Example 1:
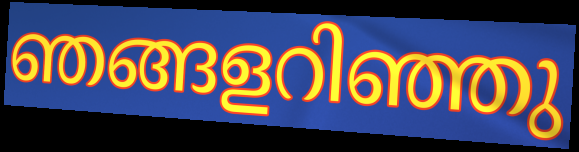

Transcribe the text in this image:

ഞങ്ങളറിഞ്ഞു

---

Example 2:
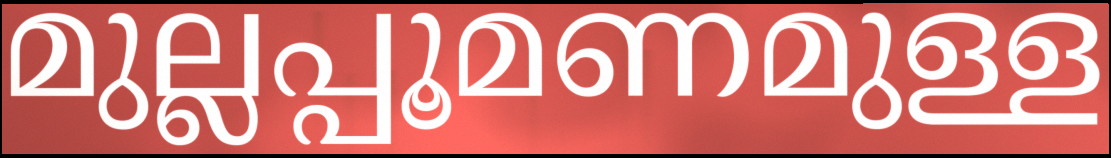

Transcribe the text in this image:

മുല്ലപ്പൂമണമുള്ള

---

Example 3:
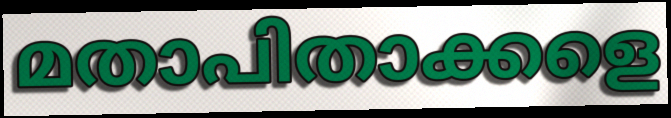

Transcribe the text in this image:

മതാപിതാക്കളെ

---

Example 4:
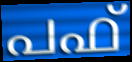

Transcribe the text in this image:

പഫ്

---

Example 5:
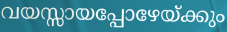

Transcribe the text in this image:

വയസ്സായപ്പോഴേയ്ക്കും